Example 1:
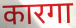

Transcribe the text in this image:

कारगा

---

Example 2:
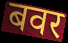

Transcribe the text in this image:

बवर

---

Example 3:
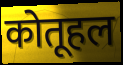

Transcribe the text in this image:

कोतूहल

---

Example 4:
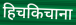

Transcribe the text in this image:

हिचकिचाना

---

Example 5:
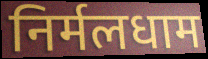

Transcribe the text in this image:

निर्मलधाम